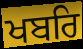
ਖਬਰਿ